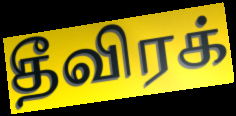
தீவிரக்